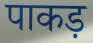
पाकड़